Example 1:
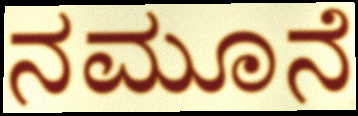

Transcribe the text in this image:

ನಮೂನೆ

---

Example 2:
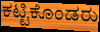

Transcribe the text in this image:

ಕಟ್ಟಿಕೊಂಡರು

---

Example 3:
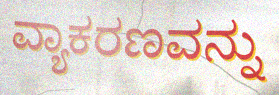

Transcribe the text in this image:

ವ್ಯಾಕರಣವನ್ನು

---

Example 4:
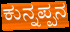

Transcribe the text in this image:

ಕುನ್ನಪ್ಪನ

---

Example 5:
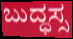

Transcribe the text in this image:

ಬುದ್ಧಸ್ಸ